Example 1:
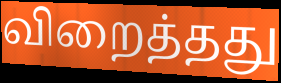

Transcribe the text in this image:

விறைத்தது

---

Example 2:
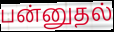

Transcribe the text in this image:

பன்னுதல்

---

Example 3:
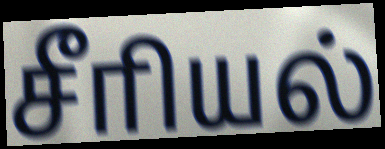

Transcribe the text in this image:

சீரியல்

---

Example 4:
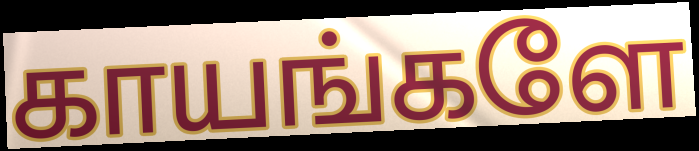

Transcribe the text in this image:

காயங்களே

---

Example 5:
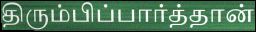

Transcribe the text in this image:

திரும்பிப்பார்த்தான்